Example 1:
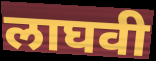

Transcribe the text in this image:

लाघवी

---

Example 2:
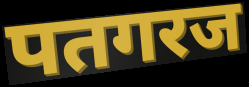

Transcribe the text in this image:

पतगरज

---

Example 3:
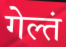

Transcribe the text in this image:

गेल्तं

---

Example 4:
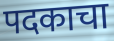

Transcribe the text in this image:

पदकाचा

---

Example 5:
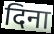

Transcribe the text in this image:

दिना